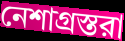
নেশাগ্রস্তরা